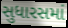
સુધારસમાં